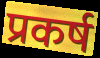
प्रकर्ष